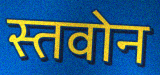
स्तवोन